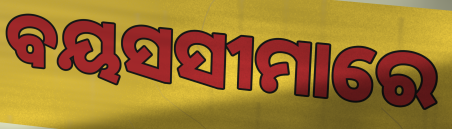
ବୟସସୀମାରେ